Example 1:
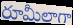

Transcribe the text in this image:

రూమీలాగా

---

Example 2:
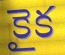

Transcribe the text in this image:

కైక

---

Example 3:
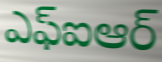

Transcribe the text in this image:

ఎఫ్ఐఆర్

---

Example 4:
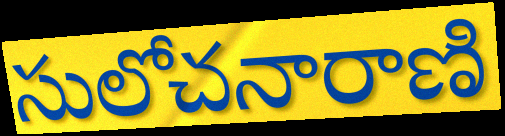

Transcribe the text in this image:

సులోచనారాణి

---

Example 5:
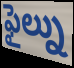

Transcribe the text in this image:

ఫైల్ను